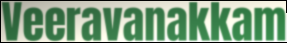
Veeravanakkam